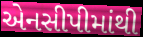
એનસીપીમાંથી